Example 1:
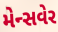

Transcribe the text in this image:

મેન્સવેર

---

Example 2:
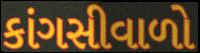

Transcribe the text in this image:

કાંગસીવાળો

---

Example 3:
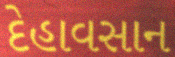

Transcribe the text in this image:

દેહાવસાન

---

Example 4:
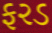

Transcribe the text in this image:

ફરડ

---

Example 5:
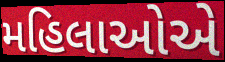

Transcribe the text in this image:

મહિલાઓએ